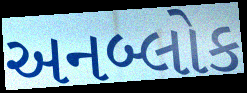
અનબ્લોક